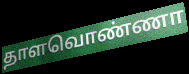
தாளவொண்ணா